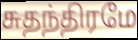
சுதந்திரமே